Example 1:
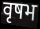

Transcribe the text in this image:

वृषभ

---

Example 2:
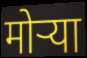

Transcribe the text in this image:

मोऱ्या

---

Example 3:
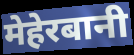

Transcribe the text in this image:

मेहेरबानी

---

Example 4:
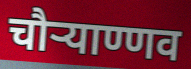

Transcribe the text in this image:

चौऱ्याण्णव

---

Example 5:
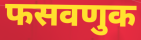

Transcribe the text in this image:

फसवणुक